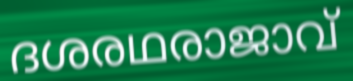
ദശരഥരാജാവ്